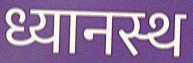
ध्यानस्थ